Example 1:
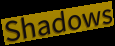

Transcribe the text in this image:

Shadows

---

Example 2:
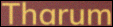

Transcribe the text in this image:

Tharum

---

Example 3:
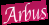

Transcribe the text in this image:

Arbus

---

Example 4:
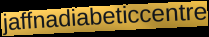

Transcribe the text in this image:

jaffnadiabeticcentre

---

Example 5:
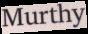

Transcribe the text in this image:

Murthy